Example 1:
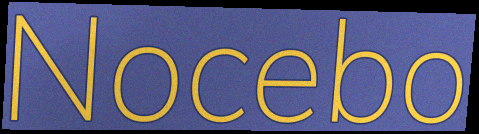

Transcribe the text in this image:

Nocebo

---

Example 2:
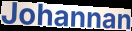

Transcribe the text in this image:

Johannan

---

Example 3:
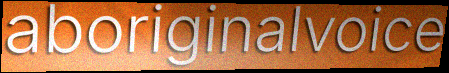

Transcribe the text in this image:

aboriginalvoice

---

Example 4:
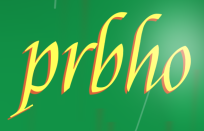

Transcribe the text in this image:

prbho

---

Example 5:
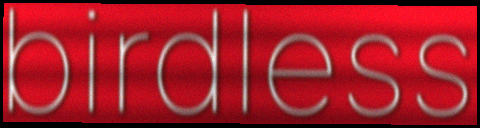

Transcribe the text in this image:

birdless